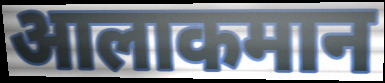
आलाकमान